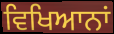
ਵਿਖਿਆਨਾਂ